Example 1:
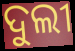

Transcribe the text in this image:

ଦୁଲୀ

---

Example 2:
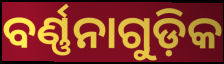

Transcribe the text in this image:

ବର୍ଣ୍ଣନାଗୁଡ଼ିକ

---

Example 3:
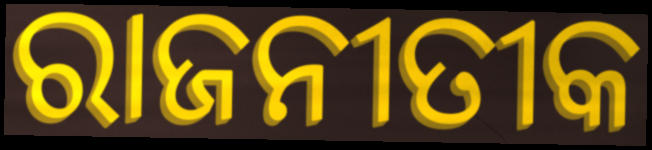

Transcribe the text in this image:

ରାଜନୀତୀକ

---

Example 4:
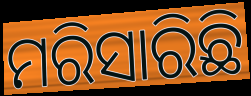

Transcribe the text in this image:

ମରିସାରିଛି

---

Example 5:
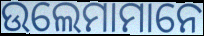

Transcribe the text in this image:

ଉଲେମାମାନେ